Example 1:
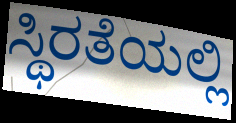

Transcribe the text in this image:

ಸ್ಥಿರತೆಯಲ್ಲಿ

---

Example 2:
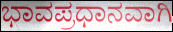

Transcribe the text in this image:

ಭಾವಪ್ರಧಾನವಾಗಿ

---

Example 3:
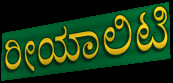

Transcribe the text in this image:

ರೀಯಾಲಿಟಿ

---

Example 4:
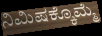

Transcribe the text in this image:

ನಿಮಿಷಕ್ಕೊಮ್ಮೆ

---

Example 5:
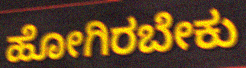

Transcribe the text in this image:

ಹೋಗಿರಬೇಕು